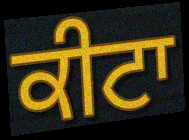
ਕੀਟਾ